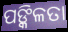
ପଙ୍କିଳତା